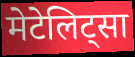
मेटेलिट्सा